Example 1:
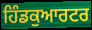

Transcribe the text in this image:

ਹਿੰਡਕੁਆਰਟਰ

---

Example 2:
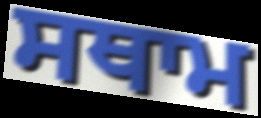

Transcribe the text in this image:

ਸਥਾਮ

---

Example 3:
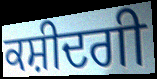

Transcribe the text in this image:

ਕਸ਼ੀਦਗੀ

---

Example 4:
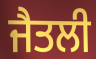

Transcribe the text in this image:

ਜੈਤਲੀ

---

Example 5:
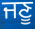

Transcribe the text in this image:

ਜਣੂ